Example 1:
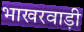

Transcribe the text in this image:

भाखरवाड़ी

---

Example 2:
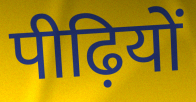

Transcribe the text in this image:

पीढ़ियों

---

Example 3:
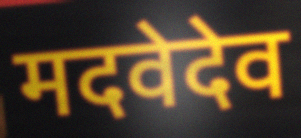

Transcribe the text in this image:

मदवेदेव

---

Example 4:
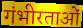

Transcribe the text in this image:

गंभीरताओं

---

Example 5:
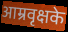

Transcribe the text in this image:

आम्रवृक्षके